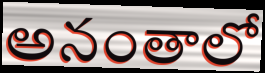
అనంతాలో